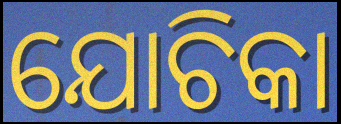
ଯୋଚିକା